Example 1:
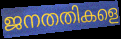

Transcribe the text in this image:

ജനതതികളെ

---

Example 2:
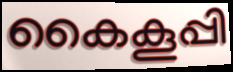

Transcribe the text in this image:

കൈകൂപ്പി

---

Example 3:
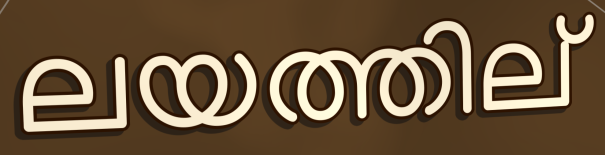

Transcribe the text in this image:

ലയത്തില്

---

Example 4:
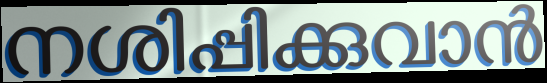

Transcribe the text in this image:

നശിപ്പിക്കുവാൻ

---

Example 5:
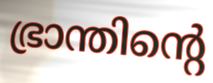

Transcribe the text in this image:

ഭ്രാന്തിന്റെ